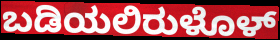
ಬಡಿಯಲಿರುಳೊಳ್